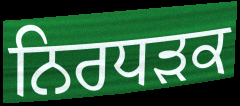
ਨਿਰਧੜਕ